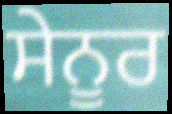
ਸੇਨੂਰ